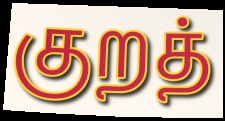
குறத்